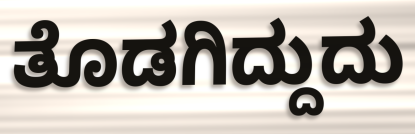
ತೊಡಗಿದ್ದುದು